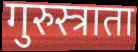
गुरुस्त्राता